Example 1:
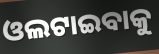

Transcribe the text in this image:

ଓଲଟାଇବାକୁ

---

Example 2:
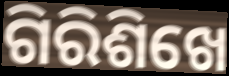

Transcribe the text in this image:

ଗିରିଶିଖେ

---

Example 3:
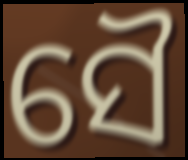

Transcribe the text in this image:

ସୈ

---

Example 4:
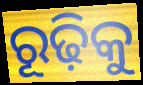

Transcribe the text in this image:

ରୂଢ଼ିକୁ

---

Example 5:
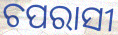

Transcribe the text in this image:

ଚପରାସୀ